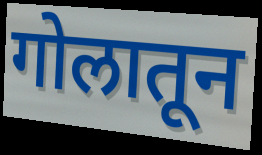
गोलातून